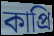
কাপ্রি